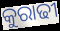
କୁରାଢୀ